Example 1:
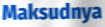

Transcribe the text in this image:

Maksudnya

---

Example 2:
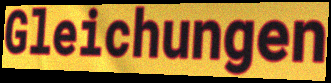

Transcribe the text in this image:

Gleichungen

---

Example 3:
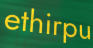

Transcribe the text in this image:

ethirpu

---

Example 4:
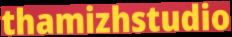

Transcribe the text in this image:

thamizhstudio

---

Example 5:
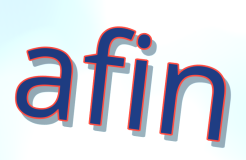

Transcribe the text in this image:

afin